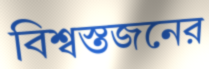
বিশ্বস্তজনের